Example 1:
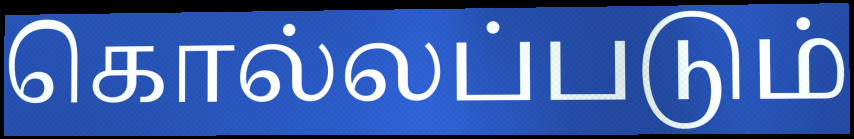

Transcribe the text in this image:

கொல்லப்படும்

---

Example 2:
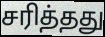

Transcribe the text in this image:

சரித்தது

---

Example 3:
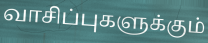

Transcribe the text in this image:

வாசிப்புகளுக்கும்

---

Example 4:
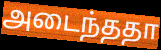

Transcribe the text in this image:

அடைந்ததா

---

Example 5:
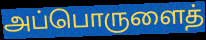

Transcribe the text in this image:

அப்பொருளைத்